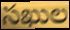
సఖుల